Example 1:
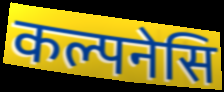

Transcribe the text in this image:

कल्पनेसि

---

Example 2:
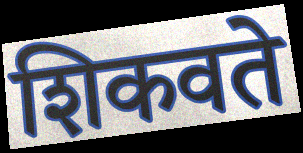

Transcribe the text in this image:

शिकवते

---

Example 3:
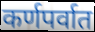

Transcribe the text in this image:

कर्णपर्वात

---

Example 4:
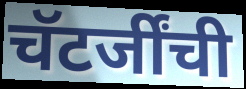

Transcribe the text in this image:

चॅटर्जींची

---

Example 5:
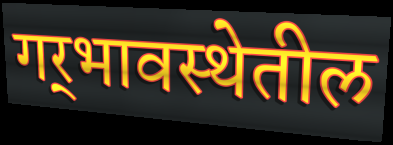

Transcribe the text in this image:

गर्भावस्थेतील